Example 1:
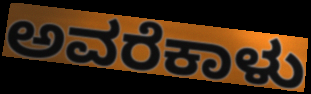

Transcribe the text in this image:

ಅವರೆಕಾಳು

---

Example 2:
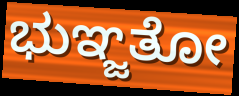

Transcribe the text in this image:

ಭುಞ್ಜತೋ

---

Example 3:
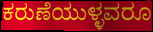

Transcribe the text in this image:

ಕರುಣೆಯುಳ್ಳವರೂ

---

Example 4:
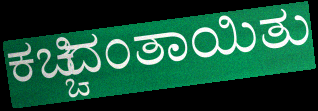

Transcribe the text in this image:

ಕಚ್ಚಿದಂತಾಯಿತು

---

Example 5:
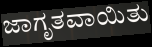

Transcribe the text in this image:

ಜಾಗೃತವಾಯಿತು